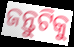
ଜନ୍ତୁଟିକୁ